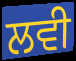
ਲਵੀ